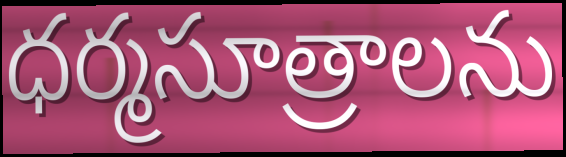
ధర్మసూత్రాలను